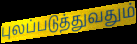
புலப்படுத்துவதும்